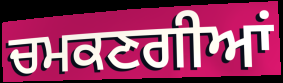
ਚਮਕਣਗੀਆਂ